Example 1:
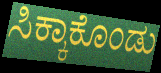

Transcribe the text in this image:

ಸಿಕ್ಕಾಕೊಂಡು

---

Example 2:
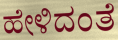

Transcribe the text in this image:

ಹೇಳಿದಂತೆ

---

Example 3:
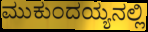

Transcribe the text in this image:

ಮುಕುಂದಯ್ಯನಲ್ಲಿ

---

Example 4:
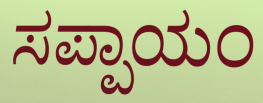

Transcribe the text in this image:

ಸಪ್ಪಾಯಂ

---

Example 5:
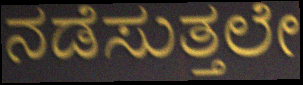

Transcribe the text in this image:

ನಡೆಸುತ್ತಲೇ